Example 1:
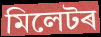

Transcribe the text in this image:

মিলেটৰ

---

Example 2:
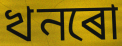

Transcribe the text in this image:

খনৰো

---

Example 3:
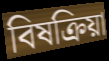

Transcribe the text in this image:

বিষক্ৰিয়া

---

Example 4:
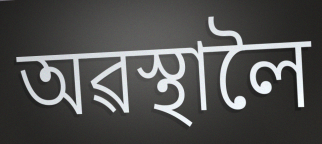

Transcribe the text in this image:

অৱস্থালৈ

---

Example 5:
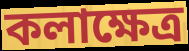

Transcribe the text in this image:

কলাক্ষেত্ৰ